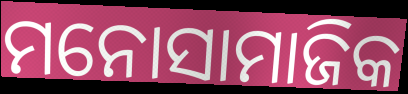
ମନୋସାମାଜିକ